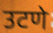
उटणे